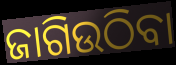
ଜାଗିଉଠିବା